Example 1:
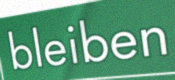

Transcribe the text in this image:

bleiben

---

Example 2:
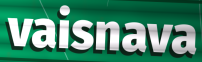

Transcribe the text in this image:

vaisnava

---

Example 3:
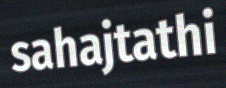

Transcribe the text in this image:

sahajtathi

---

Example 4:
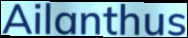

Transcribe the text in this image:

Ailanthus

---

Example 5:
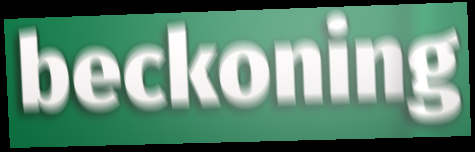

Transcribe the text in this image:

beckoning